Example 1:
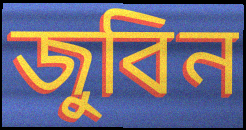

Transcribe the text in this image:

জুবিন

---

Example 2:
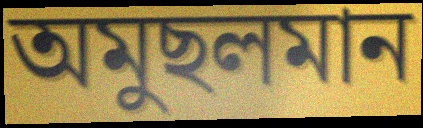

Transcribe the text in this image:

অমুছলমান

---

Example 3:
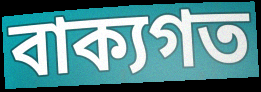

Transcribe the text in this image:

বাক্যগত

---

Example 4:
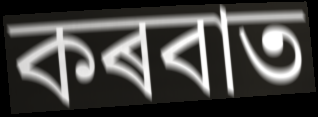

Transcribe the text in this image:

কৰবাত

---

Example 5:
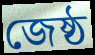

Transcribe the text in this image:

জেষ্ঠ